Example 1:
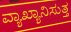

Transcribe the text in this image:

ವ್ಯಾಖ್ಯಾನಿಸುತ್ತ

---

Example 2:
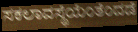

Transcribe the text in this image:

ಸಕಲಾವಸ್ಥೆಯೆಂತೆಂದಡೆ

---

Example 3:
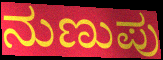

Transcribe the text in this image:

ನುಣುಪು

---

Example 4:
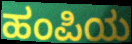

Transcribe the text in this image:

ಹಂಪಿಯ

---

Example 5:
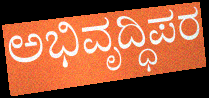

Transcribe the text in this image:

ಅಭಿವೃದ್ಧಿಪರ